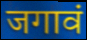
जगावं